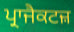
ਪ੍ਰਾਜੈਕਟਜ਼